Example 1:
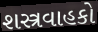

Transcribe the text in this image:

શસ્ત્રવાહકો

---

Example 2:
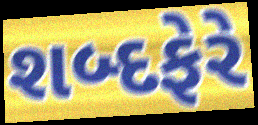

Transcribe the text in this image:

શબ્દફેરે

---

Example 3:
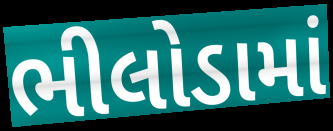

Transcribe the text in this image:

ભીલોડામાં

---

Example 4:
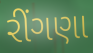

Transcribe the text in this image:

રીંગણા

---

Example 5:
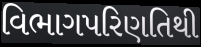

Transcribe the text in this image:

વિભાગપરિણતિથી